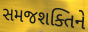
સમજશક્તિને